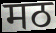
मठ